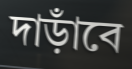
দাড়াঁবে